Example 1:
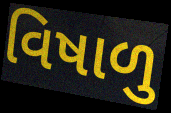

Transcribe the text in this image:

વિષાળુ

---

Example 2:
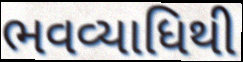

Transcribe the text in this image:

ભવવ્યાધિથી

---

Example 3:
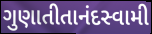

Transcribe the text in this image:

ગુણાતીતાનંદસ્વામી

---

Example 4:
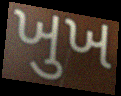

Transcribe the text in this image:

ખુખ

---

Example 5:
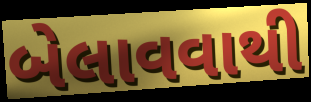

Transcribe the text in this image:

બેલાવવાથી